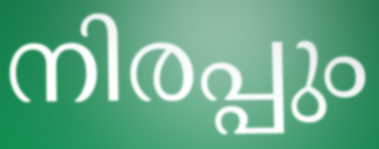
നിരപ്പും